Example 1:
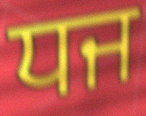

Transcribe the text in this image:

ਧਜ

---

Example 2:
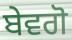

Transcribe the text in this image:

ਬੇਵਗੋ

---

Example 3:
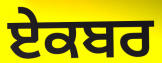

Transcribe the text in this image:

ਏਕਬਰ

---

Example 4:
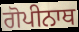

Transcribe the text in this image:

ਗੋਪੀਨਾਥ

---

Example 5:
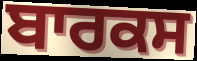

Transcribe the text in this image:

ਬਾਰਕਸ